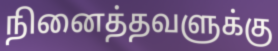
நினைத்தவளுக்கு